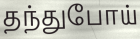
தந்துபோய்